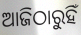
ଆଜିଠାରୁହିଁ